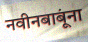
नवीनबाबूंना